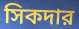
সিকদার